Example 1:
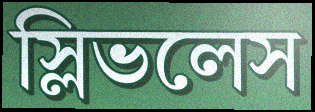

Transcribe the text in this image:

স্লিভলেস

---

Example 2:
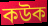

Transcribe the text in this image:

কউক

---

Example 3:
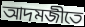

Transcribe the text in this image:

আদমজীতে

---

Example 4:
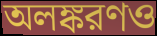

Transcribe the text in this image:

অলঙ্করণও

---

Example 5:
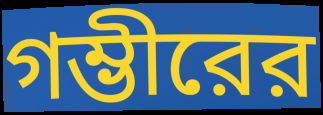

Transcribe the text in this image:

গম্ভীরের